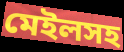
মেইলসহ